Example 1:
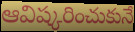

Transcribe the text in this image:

ఆవిష్కరించుకునే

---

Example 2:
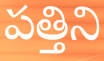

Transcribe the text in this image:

పత్తిని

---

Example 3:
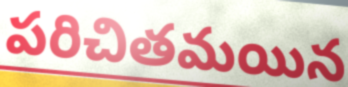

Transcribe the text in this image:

పరిచితమయిన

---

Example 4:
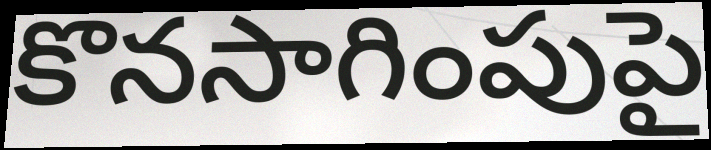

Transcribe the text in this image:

కొనసాగింపుపై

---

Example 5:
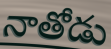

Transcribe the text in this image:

నాతోడు